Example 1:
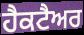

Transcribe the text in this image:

ਹੈਕਟੈਅਰ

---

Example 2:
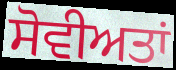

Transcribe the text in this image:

ਸੋਵੀਅਤਾਂ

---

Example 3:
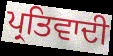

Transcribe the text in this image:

ਪ੍ਰਤਿਵਾਦੀ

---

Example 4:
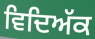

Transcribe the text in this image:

ਵਿਦਿਅੱਕ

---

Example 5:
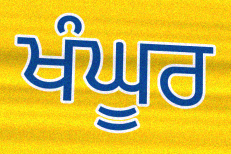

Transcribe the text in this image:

ਖੰਘੂਰ